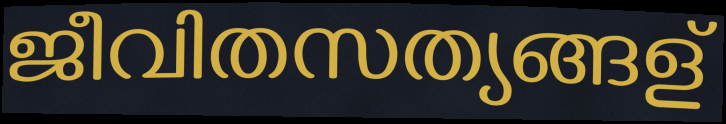
ജീവിതസത്യങ്ങള്